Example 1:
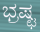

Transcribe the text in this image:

ಭ್ರಷ್ಟ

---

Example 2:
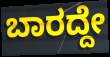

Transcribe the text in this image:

ಬಾರದ್ದೇ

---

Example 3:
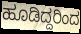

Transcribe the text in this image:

ಹೂಡಿದ್ದರಿಂದ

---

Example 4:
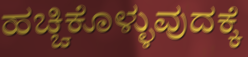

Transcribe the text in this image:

ಹಚ್ಚಿಕೊಳ್ಳುವುದಕ್ಕೆ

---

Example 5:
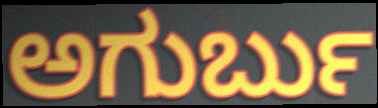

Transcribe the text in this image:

ಅಗುರ್ಬು